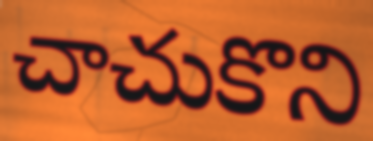
చాచుకొని